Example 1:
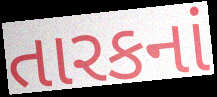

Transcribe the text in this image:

તારકનાં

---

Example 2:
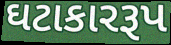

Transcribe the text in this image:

ઘટાકારરૂપ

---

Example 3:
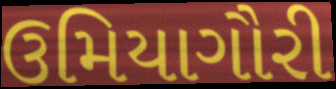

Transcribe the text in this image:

ઉમિયાગૌરી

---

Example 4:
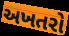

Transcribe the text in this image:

અખતરો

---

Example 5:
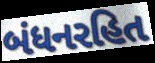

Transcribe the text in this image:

બંધનરહિત